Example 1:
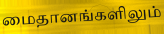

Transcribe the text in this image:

மைதானங்களிலும்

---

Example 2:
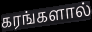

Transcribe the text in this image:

கரங்களால்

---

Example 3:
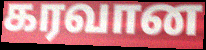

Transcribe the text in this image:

கரவான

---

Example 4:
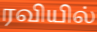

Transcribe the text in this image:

ரவியில்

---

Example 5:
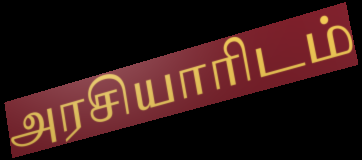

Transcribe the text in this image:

அரசியாரிடம்